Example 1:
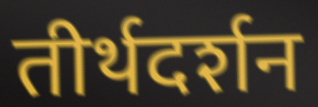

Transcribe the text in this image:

तीर्थदर्शन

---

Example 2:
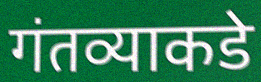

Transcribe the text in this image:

गंतव्याकडे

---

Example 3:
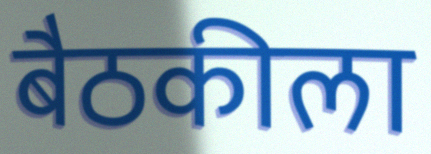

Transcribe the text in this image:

बैठकीला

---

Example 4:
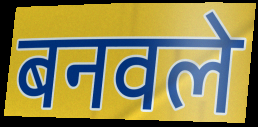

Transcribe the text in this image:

बनवले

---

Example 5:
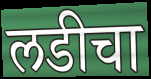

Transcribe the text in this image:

लडीचा